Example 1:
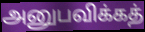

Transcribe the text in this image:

அனுபவிக்கத்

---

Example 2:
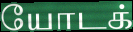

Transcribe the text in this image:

யோடக்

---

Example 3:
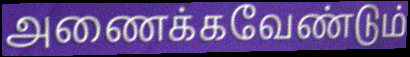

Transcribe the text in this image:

அணைக்கவேண்டும்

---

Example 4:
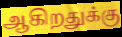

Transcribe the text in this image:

ஆகிறதுக்கு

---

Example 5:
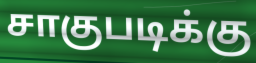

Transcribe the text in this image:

சாகுபடிக்கு